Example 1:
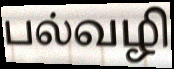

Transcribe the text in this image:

பல்வழி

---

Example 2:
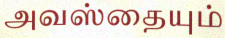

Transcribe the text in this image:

அவஸ்தையும்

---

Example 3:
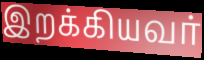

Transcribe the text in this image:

இறக்கியவர்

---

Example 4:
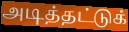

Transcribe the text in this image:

அடித்தட்டுக்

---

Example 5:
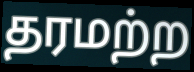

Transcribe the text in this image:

தரமற்ற